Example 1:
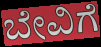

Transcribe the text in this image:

ಬೇವಿಗೆ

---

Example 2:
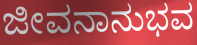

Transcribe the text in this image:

ಜೀವನಾನುಭವ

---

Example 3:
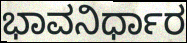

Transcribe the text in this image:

ಭಾವನಿರ್ಧಾರ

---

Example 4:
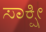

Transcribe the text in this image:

ಸಾಕ್ಷೀ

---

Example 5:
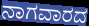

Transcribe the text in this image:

ನಾಗವಾರದ